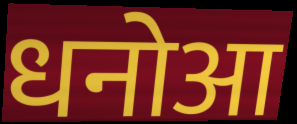
धनोआ